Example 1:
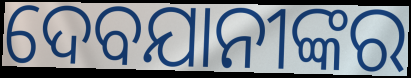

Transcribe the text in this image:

ଦେବଯାନୀଙ୍କର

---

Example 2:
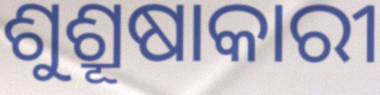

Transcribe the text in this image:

ଶୁଶ୍ରୂଷାକାରୀ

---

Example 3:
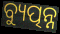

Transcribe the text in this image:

ବ୍ୟୁତ୍ପନ୍ନ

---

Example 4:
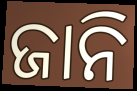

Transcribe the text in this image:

ଜାନି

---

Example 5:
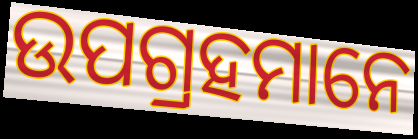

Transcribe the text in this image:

ଉପଗ୍ରହମାନେ